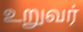
உறுவர்